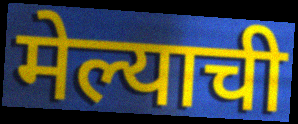
मेल्याची